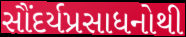
સૌંદર્યપ્રસાધનોથી